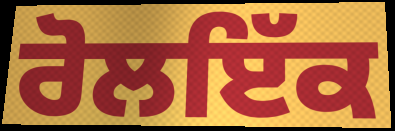
ਰੋਲਇੱਕ